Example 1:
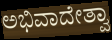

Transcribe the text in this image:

ಅಭಿವಾದೇತ್ವಾ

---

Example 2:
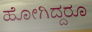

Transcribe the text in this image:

ಹೋಗಿದ್ದರೂ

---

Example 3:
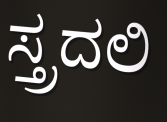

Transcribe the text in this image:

ಸ್ತ್ರದಲಿ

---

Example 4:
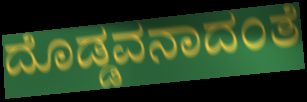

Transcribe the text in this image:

ದೊಡ್ಡವನಾದಂತೆ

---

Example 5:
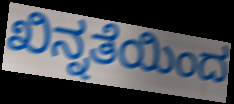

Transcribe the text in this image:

ಖಿನ್ನತೆಯಿಂದ